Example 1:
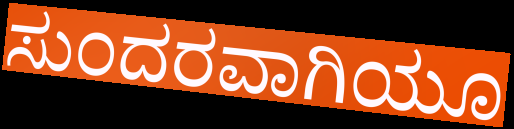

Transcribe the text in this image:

ಸುಂದರವಾಗಿಯೂ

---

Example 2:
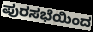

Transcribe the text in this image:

ಪುರಸಭೆಯಿಂದ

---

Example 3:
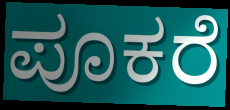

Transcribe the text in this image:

ಪೂಕರೆ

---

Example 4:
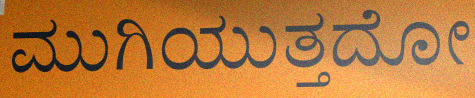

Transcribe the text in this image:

ಮುಗಿಯುತ್ತದೋ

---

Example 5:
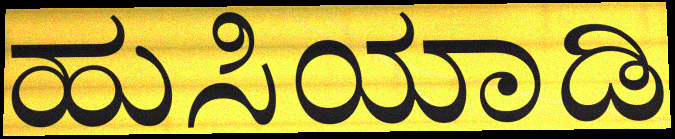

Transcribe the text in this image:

ಹುಸಿಯಾಡಿ